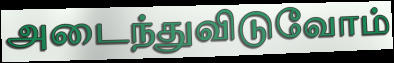
அடைந்துவிடுவோம்